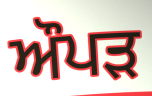
ਔਪੜ